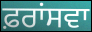
ਫ਼ਰਾਂਸਵਾ